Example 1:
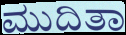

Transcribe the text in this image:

ಮುದಿತಾ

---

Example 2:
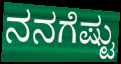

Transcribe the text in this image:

ನನಗೆಷ್ಟು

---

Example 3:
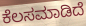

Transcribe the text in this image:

ಕೆಲಸಮಾಡಿದೆ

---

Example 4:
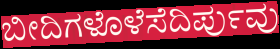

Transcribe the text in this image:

ಬೀದಿಗಳೊಳೆಸೆದಿರ್ಪುವು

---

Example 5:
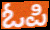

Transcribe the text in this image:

ಓಪಿ